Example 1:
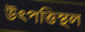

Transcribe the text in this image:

উৎপত্তিস্থল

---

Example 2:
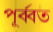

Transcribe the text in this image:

পূৰ্ব্বত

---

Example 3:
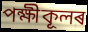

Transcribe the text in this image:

পক্ষীকূলৰ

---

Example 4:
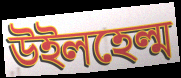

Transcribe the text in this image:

উইলহেল্ম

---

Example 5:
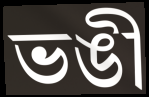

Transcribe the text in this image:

ভঙী